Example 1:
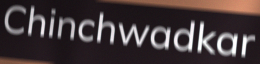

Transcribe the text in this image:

Chinchwadkar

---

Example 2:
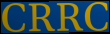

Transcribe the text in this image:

CRRC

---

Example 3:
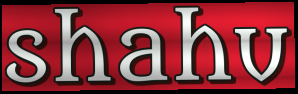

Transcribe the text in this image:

shahu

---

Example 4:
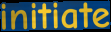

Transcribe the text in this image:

initiate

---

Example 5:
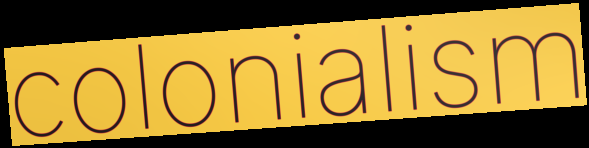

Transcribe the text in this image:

colonialism